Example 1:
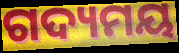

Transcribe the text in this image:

ଗଦ୍ୟମୟ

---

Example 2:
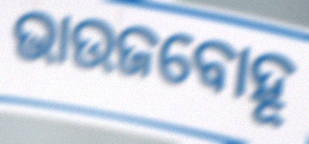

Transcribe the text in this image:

ଭାଉଜବୋହୂ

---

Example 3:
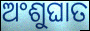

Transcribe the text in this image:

ଅଂଶୁଘାତ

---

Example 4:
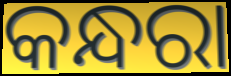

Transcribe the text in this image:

କନ୍ଧରା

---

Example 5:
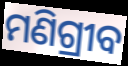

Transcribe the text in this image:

ମଣିଗ୍ରୀବ